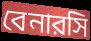
বেনারসি